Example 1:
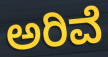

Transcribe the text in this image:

ಅರಿವೆ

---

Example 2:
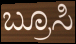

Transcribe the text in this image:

ಬ್ರೂಸಿ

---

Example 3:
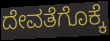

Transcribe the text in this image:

ದೇವತೆಗೊಕ್ಕೆ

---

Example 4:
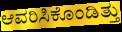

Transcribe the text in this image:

ಆವರಿಸಿಕೊಂಡಿತ್ತು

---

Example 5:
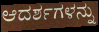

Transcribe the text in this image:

ಆದರ್ಶಗಳನ್ನು